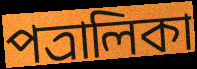
পত্রালিকা